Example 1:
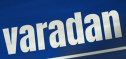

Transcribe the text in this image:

varadan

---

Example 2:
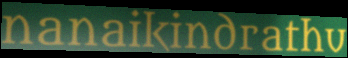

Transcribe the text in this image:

nanaikindrathu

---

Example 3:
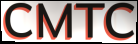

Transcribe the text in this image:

CMTC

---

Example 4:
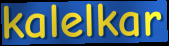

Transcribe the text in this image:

kalelkar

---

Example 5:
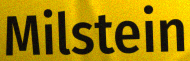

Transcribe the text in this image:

Milstein